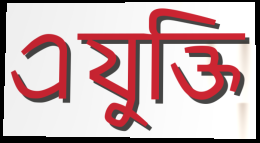
এযুক্তি